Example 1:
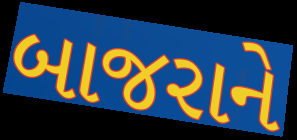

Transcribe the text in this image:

બાજરાને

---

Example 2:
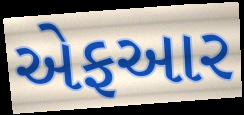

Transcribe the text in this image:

એફઆર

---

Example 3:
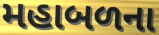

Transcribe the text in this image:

મહાબળના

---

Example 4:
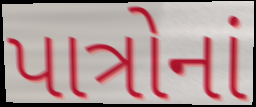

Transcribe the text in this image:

પાત્રોનાં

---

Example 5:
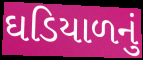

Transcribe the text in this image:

ઘડિયાળનું